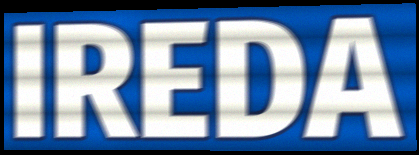
IREDA